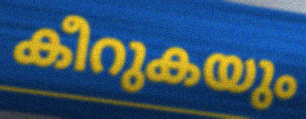
കീറുകയും